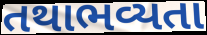
તથાભવ્યતા